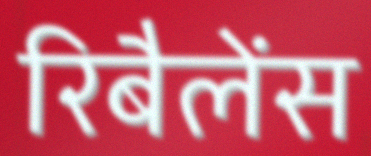
रिबैलेंस